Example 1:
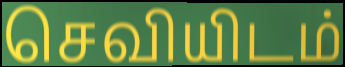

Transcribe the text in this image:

செவியிடம்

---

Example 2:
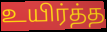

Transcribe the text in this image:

உயிர்த்த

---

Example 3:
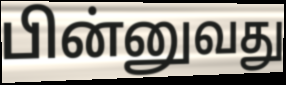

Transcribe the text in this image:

பின்னுவது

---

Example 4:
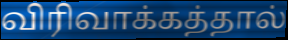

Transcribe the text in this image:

விரிவாக்கத்தால்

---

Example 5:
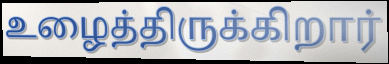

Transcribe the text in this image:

உழைத்திருக்கிறார்